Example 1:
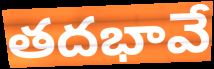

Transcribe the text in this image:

తదభావే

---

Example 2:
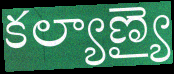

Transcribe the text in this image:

కల్యాణ్యై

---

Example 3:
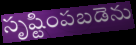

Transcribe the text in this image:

సృష్టింపబడెను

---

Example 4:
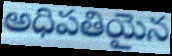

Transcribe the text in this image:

అధిపతియైన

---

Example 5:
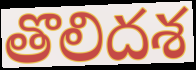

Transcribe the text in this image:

తొలిదశ